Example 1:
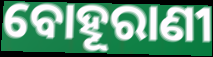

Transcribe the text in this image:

ବୋହୂରାଣୀ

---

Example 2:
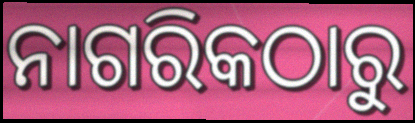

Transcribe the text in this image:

ନାଗରିକଠାରୁ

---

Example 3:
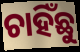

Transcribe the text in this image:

ଚାହିଁଛୁ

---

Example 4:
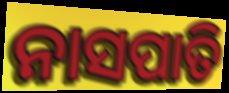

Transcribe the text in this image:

ନାସପାତି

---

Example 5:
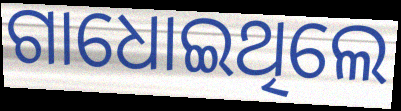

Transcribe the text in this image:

ଗାଧୋଇଥିଲେ